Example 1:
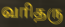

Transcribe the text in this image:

வரிதரு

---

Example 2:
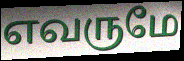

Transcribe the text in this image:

எவருமே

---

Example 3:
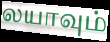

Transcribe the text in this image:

லயாவும்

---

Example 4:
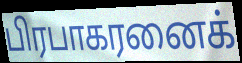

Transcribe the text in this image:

பிரபாகரனைக்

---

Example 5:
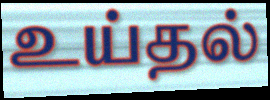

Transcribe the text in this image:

உய்தல்